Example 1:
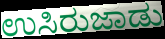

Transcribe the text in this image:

ಉಸಿರುಜಾಡು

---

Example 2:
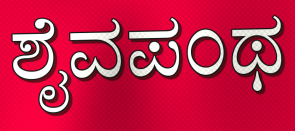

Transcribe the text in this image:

ಶೈವಪಂಥ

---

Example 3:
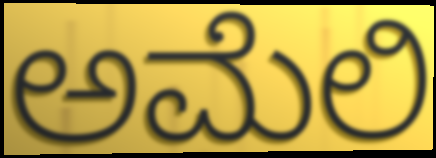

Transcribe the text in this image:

ಅಮೆಲಿ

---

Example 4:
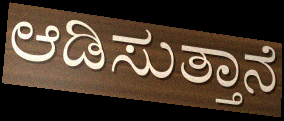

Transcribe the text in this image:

ಆಡಿಸುತ್ತಾನೆ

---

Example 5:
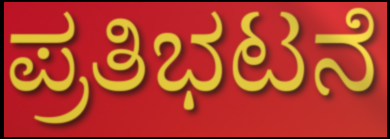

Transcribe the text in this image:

ಪ್ರತಿಭಟನೆ